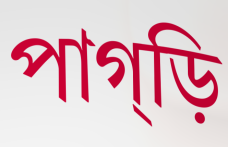
পাগ্ড়ি